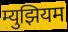
म्युझियम